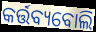
କର୍ତ୍ତବ୍ୟବୋଲି